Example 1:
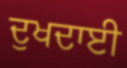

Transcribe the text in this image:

ਦੁਖਦਾਈ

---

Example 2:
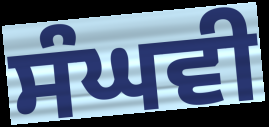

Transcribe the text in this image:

ਸੰਘਵੀ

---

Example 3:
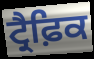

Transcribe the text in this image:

ਟ੍ਰੈਫ਼ਿਕ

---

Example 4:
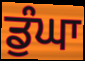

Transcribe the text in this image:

ਡੁੰਘਾ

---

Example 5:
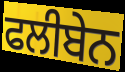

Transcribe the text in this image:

ਫਲੀਬੇਨ